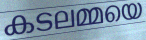
കടലമ്മയെ